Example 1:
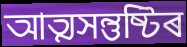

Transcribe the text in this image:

আত্মসন্তুষ্টিৰ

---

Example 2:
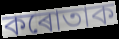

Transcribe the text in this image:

কৰোতাক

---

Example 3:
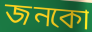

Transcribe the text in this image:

জনকো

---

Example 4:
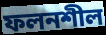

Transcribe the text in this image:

ফলনশীল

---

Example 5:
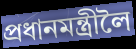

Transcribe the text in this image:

প্ৰধানমন্ত্ৰীলৈ